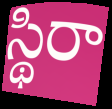
స్థిరా